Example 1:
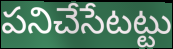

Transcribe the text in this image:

పనిచేసేటట్టు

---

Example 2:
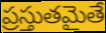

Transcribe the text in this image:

ప్రస్తుతమైతే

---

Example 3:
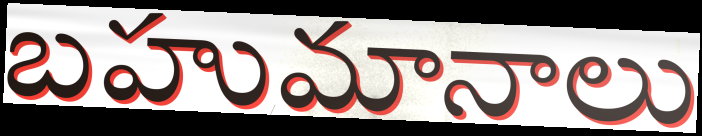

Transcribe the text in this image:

బహుమానాలు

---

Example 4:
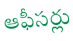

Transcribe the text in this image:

ఆఫీసర్లు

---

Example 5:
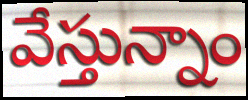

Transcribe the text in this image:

వేస్తున్నాం